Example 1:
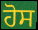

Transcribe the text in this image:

ਹੋਸ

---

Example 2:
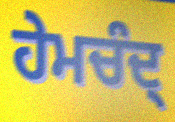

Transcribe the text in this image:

ਹੇਮਚੰਦ੍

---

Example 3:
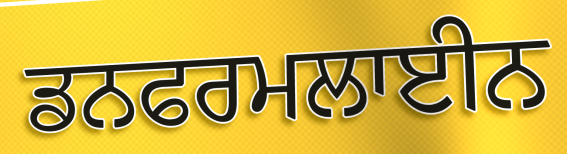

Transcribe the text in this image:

ਡਨਫਰਮਲਾਈਨ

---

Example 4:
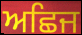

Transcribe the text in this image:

ਅਛਿਜ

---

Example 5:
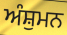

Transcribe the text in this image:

ਅੰਸ਼ੁਮਨ